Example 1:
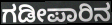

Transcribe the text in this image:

ಗಡೀಪಾರಿನ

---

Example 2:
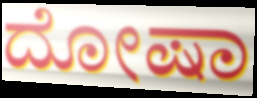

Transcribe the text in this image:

ದೋಷಾ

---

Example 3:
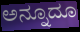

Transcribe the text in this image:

ಅನ್ನೂದೂ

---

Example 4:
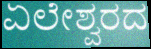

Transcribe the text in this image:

ಏಲೇಶ್ವರದ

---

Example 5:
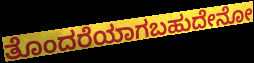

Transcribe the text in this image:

ತೊಂದರೆಯಾಗಬಹುದೇನೋ